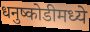
धनुष्कोडीमध्ये